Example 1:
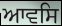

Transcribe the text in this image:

ਆਵਸਿ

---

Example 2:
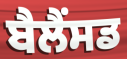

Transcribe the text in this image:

ਬੈਲੈਂਸਡ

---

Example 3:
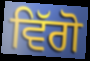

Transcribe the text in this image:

ਵਿੱਗੋ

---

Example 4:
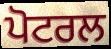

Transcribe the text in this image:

ਪੋਟਰਲ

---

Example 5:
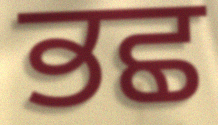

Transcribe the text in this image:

ਭਛ